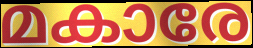
മകാരേ